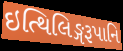
ઇત્થિલિઙ્ગરૂપાનિ